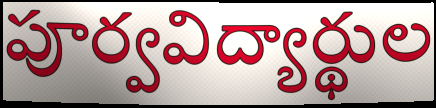
పూర్వవిద్యార్థుల